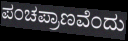
ಪಂಚಪ್ರಾಣವೆಂದು